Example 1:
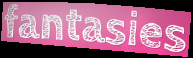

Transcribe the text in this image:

fantasies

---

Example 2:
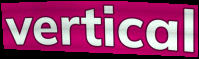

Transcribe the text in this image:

vertical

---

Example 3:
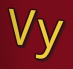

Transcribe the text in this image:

Vy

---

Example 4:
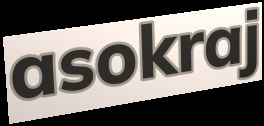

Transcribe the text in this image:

asokraj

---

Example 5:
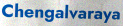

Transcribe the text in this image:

Chengalvaraya